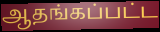
ஆதங்கப்பட்ட